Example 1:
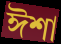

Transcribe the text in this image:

ঈশা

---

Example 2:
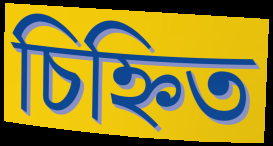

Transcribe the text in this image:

চিহ্নিত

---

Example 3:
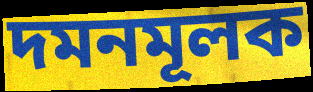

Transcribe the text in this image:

দমনমূলক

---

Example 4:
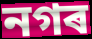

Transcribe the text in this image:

নগৰ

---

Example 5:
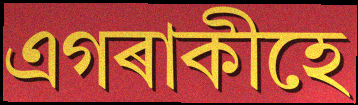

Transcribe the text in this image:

এগৰাকীহে